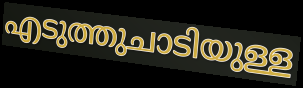
എടുത്തുചാടിയുള്ള